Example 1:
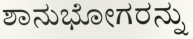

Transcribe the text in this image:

ಶಾನುಭೋಗರನ್ನು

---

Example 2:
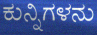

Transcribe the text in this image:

ಕುನ್ನಿಗಳನು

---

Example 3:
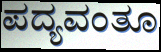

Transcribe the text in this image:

ಪದ್ಯವಂತೂ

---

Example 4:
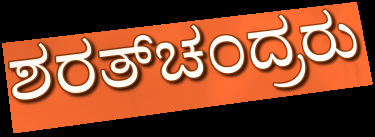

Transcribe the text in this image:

ಶರತ್‌ಚಂದ್ರರು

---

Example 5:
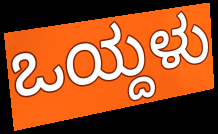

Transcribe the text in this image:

ಒಯ್ದಳು